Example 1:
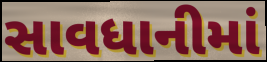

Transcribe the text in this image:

સાવધાનીમાં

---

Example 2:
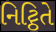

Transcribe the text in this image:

નિટ્ઠિતે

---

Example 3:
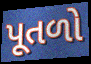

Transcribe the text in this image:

પૂતળો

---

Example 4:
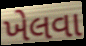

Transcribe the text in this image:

ખેલવા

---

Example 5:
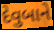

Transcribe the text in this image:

દેવુબાને